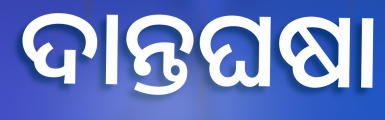
ଦାନ୍ତଘଷା